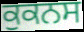
ਕੁਕਨਸ